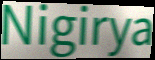
Nigirya